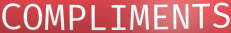
COMPLIMENTS